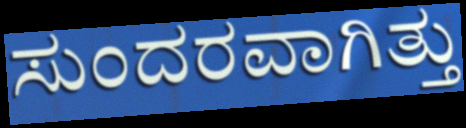
ಸುಂದರವಾಗಿತ್ತು